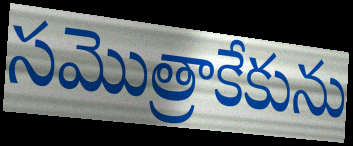
సమొత్రాకేకును